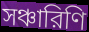
সঞ্চারিণি